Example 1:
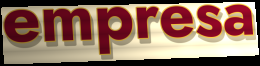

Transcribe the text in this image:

empresa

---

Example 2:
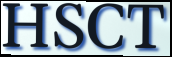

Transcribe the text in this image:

HSCT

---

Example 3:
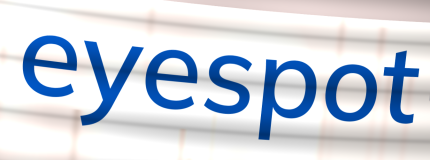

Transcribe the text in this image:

eyespot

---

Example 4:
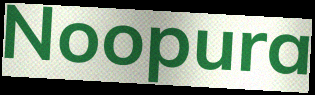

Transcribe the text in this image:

Noopura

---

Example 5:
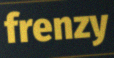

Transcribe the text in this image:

frenzy